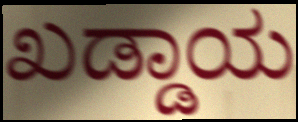
ಖಡ್ಡಾಯ